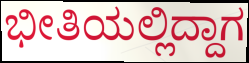
ಭೀತಿಯಲ್ಲಿದ್ದಾಗ